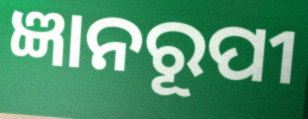
ଜ୍ଞାନରୂପୀ